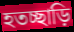
হতচ্ছাড়ি